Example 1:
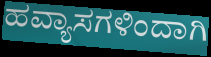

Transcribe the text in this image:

ಹವ್ಯಾಸಗಳಿಂದಾಗಿ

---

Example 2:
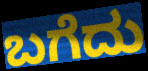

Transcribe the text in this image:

ಬಗೆದು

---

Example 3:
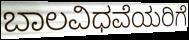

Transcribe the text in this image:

ಬಾಲವಿಧವೆಯರಿಗೆ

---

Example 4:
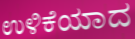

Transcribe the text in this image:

ಉಳಿಕೆಯಾದ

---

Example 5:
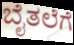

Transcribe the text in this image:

ಬೈತಲೆಗೆ